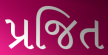
પ્રજિત